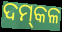
ଦମ୍‌କଳ